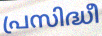
പ്രസിദ്ധീ